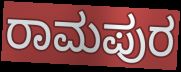
ರಾಮಪುರ